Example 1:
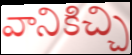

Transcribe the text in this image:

వానికిచ్చి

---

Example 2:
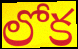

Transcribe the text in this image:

లోక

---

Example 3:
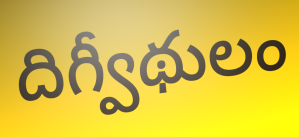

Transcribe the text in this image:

దిగ్వీథులం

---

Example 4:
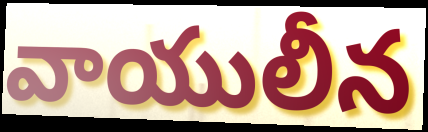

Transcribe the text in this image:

వాయులీన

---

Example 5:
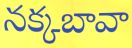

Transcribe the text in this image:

నక్కబావా